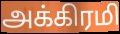
அக்கிரமி